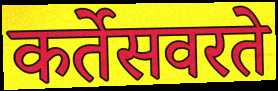
कर्तेसवरते